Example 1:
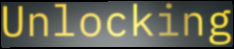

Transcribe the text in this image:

Unlocking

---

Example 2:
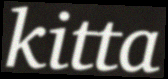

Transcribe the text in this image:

kitta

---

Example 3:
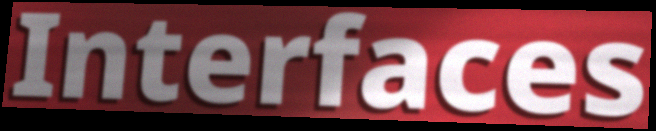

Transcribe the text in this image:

Interfaces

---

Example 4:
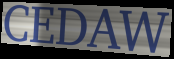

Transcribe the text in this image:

CEDAW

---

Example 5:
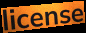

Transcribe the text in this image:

license